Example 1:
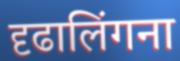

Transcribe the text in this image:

दृढालिंगना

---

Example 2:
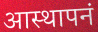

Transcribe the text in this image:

आस्थापनं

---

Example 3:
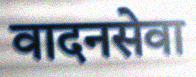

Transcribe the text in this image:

वादनसेवा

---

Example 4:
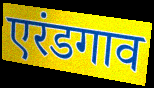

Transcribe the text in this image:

एरंडगाव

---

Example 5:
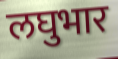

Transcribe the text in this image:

लघुभार